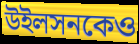
উইলসনকেও